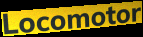
Locomotor